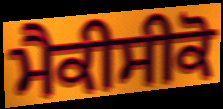
ਮੈਕੀਸੀਕੋ